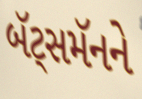
બૅટ્સમૅનને